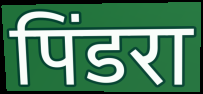
पिंडरा